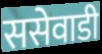
ससेवाडी